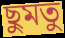
ছুমতু